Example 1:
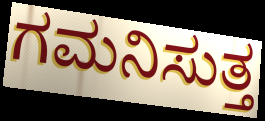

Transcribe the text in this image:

ಗಮನಿಸುತ್ತ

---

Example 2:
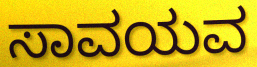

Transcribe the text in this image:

ಸಾವಯವ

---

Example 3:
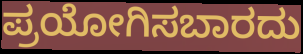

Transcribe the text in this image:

ಪ್ರಯೋಗಿಸಬಾರದು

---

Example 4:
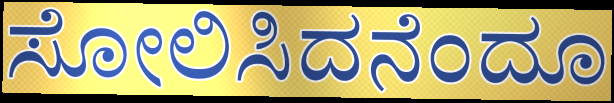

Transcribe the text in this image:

ಸೋಲಿಸಿದನೆಂದೂ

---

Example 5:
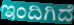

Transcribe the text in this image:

ಇಂದಿಗಿದೆ